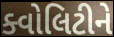
ક્વોલિટીને